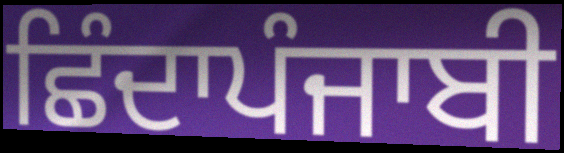
ਛਿੰਦਾਪੰਜਾਬੀ